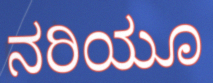
ನರಿಯೂ